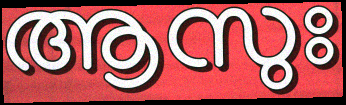
ആസുഃ